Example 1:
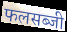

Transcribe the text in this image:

फलसब्जी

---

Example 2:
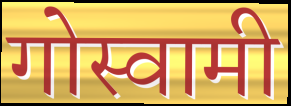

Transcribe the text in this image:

गोस्वामी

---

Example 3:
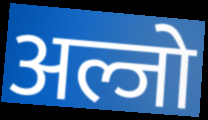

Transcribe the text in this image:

अल्जो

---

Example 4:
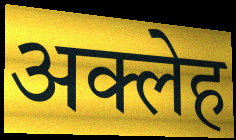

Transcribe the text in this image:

अक्लेह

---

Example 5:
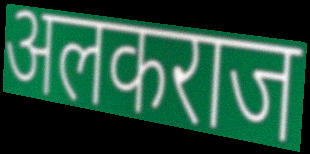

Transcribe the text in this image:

अलकराज